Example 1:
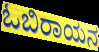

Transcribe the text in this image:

ಓಬಿರಾಯನ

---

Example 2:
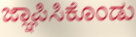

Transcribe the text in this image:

ಜ್ಞಾಪಿಸಿಕೊಂಡು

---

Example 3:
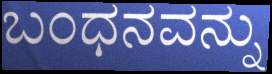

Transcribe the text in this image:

ಬಂಧನವನ್ನು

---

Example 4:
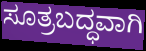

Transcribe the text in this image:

ಸೂತ್ರಬದ್ಧವಾಗಿ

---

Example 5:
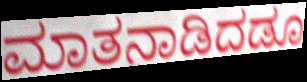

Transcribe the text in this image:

ಮಾತನಾಡಿದಡೂ